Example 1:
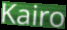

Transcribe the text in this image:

Kairo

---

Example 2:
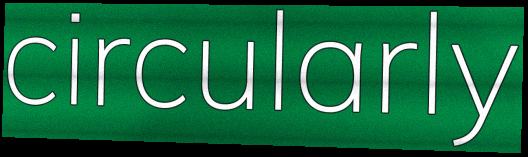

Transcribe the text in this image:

circularly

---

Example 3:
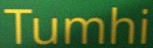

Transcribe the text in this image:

Tumhi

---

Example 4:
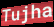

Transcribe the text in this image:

Tujha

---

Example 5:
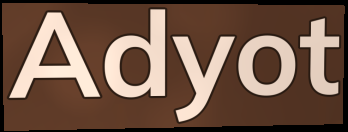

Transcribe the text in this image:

Adyot